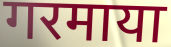
गरमाया